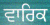
ਵਾਰਿਕ